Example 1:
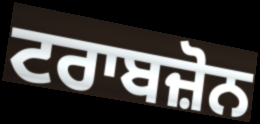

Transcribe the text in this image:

ਟਰਾਬਜ਼ੋਨ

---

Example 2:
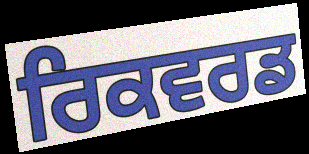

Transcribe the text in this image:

ਰਿਕਵਰਡ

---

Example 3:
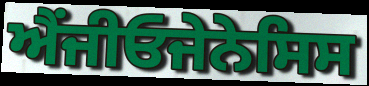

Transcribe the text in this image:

ਐਂਜੀਓਜੇਨੇਸਿਸ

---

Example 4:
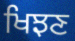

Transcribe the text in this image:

ਖਿਝਣ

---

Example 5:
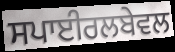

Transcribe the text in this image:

ਸਪਾਈਰਲਬੇਵਲ